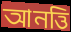
আনত্তি